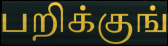
பறிக்குங்